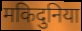
मकिदुनिया